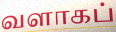
வளாகப்